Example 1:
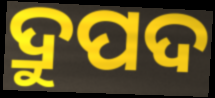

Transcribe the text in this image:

ଦ୍ରୁପଦ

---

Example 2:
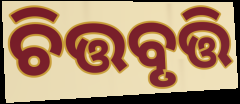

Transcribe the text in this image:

ଚିତ୍ତବୃତ୍ତି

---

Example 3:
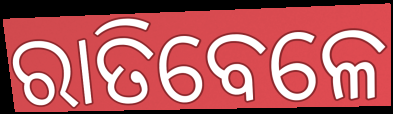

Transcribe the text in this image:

ରାତିବେଳେ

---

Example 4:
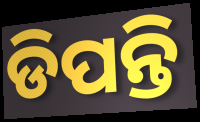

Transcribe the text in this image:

ଡିପନ୍ତି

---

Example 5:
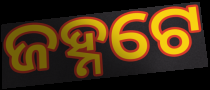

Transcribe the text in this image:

ଜହ୍ନଟେ